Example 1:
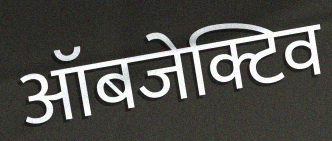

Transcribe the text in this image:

ऑबजेक्टिव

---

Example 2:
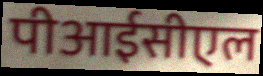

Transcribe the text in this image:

पीआईसीएल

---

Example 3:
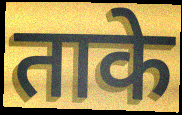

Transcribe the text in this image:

ताके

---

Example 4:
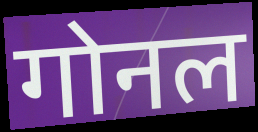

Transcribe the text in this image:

गोनल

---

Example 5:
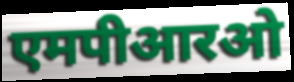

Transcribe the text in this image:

एमपीआरओ